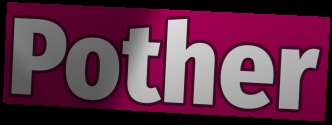
Pother